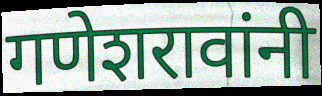
गणेशरावांनी